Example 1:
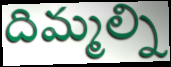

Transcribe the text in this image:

దిమ్మల్ని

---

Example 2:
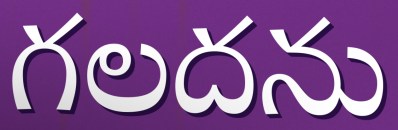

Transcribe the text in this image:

గలదను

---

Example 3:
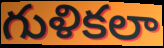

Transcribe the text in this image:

గుళికలా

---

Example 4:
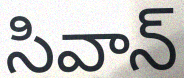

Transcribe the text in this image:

సివాన్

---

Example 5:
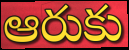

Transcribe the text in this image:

ఆరుకు